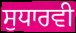
ਸੁਧਾਰਵੀ